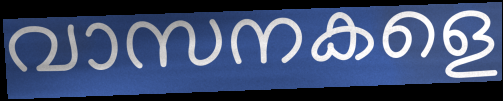
വാസനകളെ